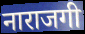
नाराजगी